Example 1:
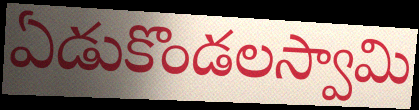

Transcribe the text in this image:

ఏడుకొండలస్వామి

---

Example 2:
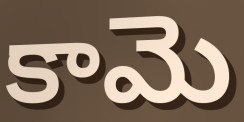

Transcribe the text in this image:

కామె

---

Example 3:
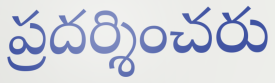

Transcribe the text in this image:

ప్రదర్శించరు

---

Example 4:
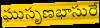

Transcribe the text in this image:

ఘుసృణభాసురే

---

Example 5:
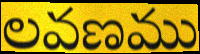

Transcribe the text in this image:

లవణము